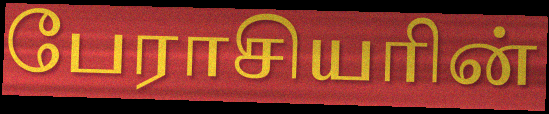
பேராசியரின்